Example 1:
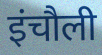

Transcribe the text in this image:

इंचौली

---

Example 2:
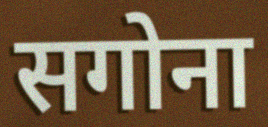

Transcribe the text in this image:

सगोना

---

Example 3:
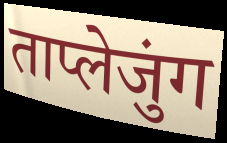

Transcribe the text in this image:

ताप्लेजुंग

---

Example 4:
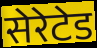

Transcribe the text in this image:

सेरेटेड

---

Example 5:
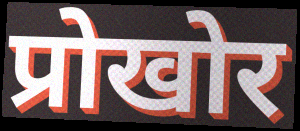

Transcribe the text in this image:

प्रोखोर